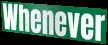
Whenever